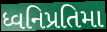
ધ્વનિપ્રતિમા